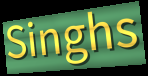
Singhs